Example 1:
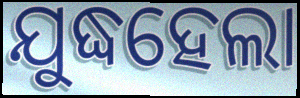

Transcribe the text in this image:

ଯୁଦ୍ଧହେଲା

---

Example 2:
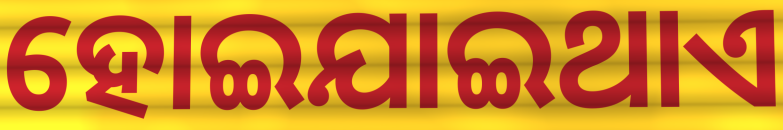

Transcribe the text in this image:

ହୋଇଯାଇଥାଏ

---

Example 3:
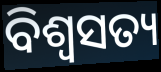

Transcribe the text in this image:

ବିଶ୍ୱସତ୍ୟ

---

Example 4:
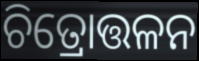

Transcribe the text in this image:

ଚିତ୍ରୋତ୍ତଳନ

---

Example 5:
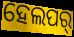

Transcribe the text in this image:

ହେଲପର୍